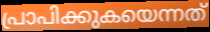
പ്രാപിക്കുകയെന്നത്